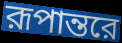
রূপান্তরে